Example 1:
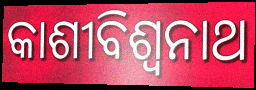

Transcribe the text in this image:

କାଶୀବିଶ୍ଵନାଥ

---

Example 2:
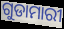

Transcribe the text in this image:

ଗୁଡାମାରୀ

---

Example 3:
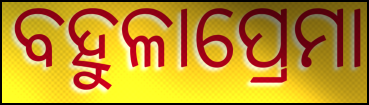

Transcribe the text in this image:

ବହୁଳାପ୍ରେମା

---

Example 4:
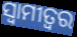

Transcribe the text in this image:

ସ୍ୱାମୀତ୍ୱର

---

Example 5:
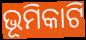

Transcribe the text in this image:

ଭୂମିକାଟି